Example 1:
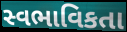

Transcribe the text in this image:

સ્વભાવિકતા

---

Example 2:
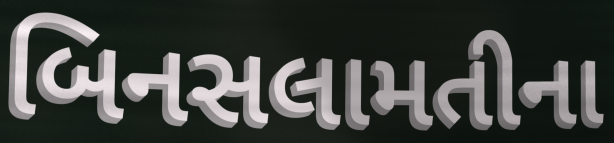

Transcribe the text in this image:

બિનસલામતીના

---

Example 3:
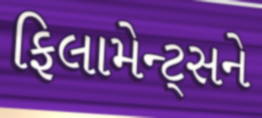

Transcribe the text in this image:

ફિલામેન્ટ્સને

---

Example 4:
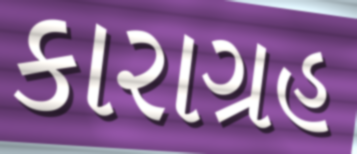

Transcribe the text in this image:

કારાગ્રહ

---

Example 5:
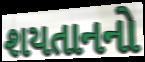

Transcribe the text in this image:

શયતાનનો